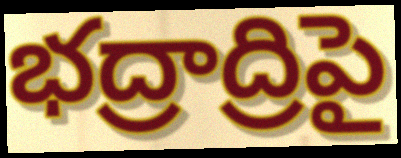
భద్రాద్రిపై